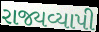
રાજ્યવ્યાપી